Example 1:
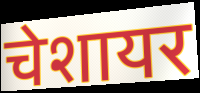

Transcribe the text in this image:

चेशायर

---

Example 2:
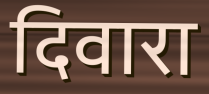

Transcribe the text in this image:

दिवारा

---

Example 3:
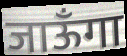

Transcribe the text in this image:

जाऊँगा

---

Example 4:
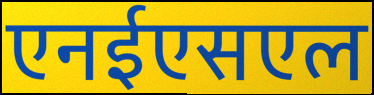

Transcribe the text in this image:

एनईएसएल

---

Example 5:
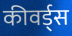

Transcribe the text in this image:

कीवर्ड्स